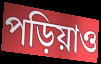
পড়িয়াও